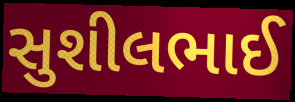
સુશીલભાઈ